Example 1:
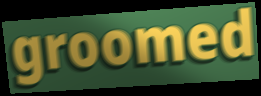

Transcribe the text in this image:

groomed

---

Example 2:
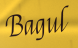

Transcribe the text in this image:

Bagul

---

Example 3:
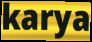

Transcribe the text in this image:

karya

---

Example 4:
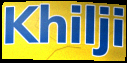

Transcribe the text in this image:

Khilji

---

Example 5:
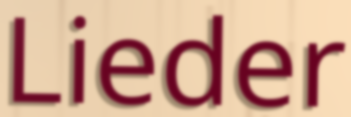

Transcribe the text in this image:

Lieder